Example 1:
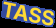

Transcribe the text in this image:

TASS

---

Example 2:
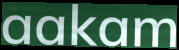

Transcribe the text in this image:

aakam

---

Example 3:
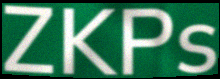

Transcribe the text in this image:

ZKPs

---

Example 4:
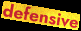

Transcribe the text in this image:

defensive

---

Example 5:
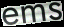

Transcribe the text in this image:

ems